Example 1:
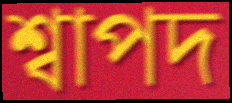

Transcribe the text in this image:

শ্বাপদ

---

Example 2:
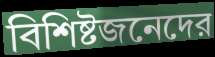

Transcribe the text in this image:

বিশিষ্টজনেদের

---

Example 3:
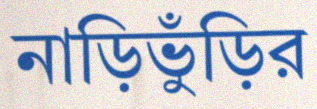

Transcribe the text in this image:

নাড়িভুঁড়ির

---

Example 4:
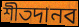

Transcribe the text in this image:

শীতদানব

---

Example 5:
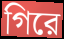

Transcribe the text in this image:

গিরে